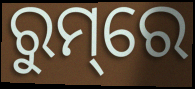
ରୁମ୍‌ରେ